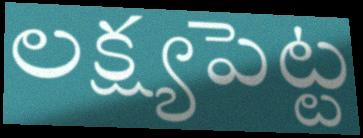
లక్ష్యపెట్ట